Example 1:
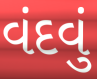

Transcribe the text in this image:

વંદવું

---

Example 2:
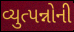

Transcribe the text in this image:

વ્યુત્પન્નોની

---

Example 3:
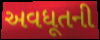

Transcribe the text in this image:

અવધૂતની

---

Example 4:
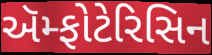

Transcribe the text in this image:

ઍમ્ફોટેરિસિન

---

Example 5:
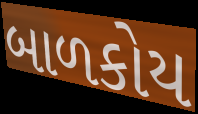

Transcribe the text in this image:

બાળકોય